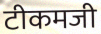
टीकमजी